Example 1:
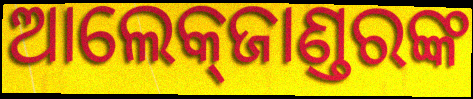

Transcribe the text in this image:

ଆଲେକ୍‌ଜାଣ୍ଡରଙ୍କ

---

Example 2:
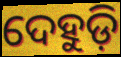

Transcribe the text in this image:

ଦେହୁଡ଼ି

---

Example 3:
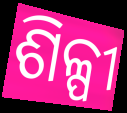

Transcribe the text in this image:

ଶିଳ୍ପୀ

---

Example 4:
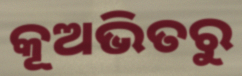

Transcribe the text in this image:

କୂଅଭିତରୁ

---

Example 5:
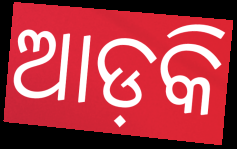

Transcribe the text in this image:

ଆଡ଼କି